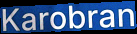
Karobran